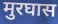
मुरघास